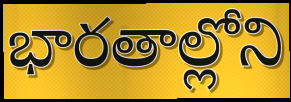
భారతాల్లోని